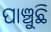
ପାଞ୍ଚୁଛି